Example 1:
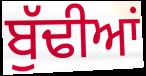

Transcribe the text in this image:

ਬੁੱਢੀਆਂ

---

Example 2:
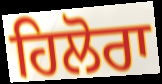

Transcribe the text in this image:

ਹਿਲੋਰਾ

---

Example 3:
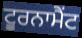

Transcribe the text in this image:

ਟੂਰਨਾਮੈਂਟ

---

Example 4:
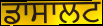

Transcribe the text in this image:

ਡਾਸਾਲਟ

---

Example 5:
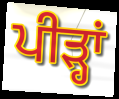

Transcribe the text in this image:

ਪੀੜ੍ਹਾਂ